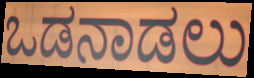
ಒಡನಾಡಲು